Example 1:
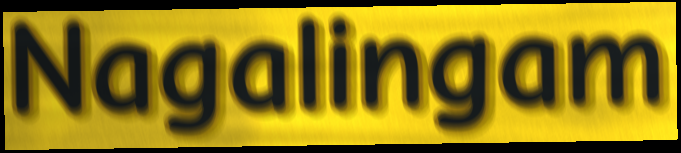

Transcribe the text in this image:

Nagalingam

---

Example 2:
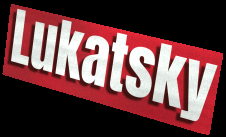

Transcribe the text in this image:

Lukatsky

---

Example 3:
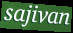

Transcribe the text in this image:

sajivan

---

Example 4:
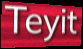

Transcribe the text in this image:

Teyit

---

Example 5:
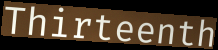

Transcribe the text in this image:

Thirteenth